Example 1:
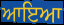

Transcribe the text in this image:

ਆਇਆ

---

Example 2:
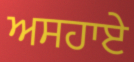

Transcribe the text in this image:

ਅਸਹਾਏ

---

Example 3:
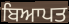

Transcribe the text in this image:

ਬਿਆਪਤ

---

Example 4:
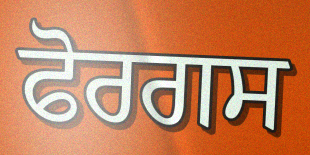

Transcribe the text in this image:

ਫੋਰਗਸ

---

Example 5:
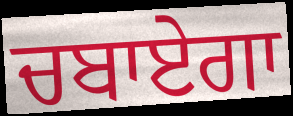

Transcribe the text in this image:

ਚਬਾਏਗਾ